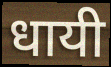
धायी